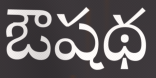
ఔషథ